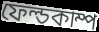
ফেল্ডকাম্প